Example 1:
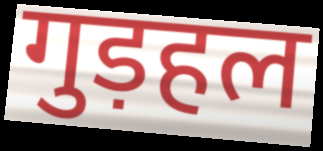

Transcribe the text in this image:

गुड़हल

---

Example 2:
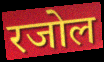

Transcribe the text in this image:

रजोल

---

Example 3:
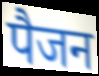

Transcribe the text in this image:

पैजन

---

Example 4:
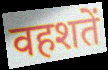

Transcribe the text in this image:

वहशतें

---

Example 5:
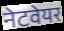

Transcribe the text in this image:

नेटवेयर